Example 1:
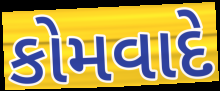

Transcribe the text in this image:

કોમવાદે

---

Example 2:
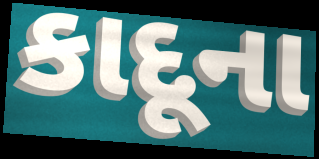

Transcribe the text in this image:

કાદૂના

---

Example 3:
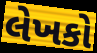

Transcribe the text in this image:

લેખકો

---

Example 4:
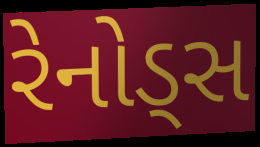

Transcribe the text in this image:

રેનોડ્સ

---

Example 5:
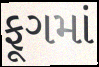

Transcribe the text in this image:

ફૂગમાં